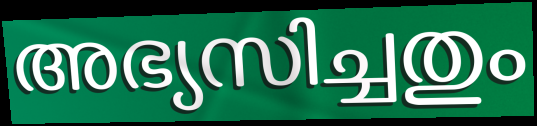
അഭ്യസിച്ചതും